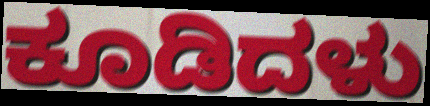
ಕೂಡಿದಳು